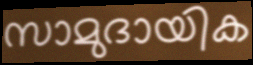
സാമുദായിക